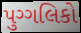
પુગ્ગલિકો